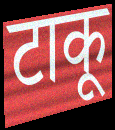
टाकू